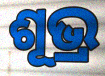
ଶୂଭ୍ର